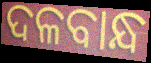
ଦଳବାନ୍ଧ